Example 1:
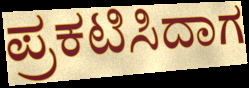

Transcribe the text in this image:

ಪ್ರಕಟಿಸಿದಾಗ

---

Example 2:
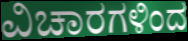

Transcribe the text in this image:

ವಿಚಾರಗಳಿಂದ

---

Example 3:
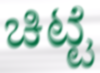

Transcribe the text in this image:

ಚಿಟ್ಟೆ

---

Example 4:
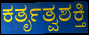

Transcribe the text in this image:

ಕರ್ತೃತ್ವಶಕ್ತಿ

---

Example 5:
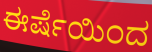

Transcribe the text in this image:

ಈರ್ಷೆಯಿಂದ